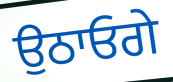
ਉਠਾਓਗੇ